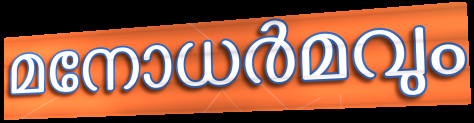
മനോധർമവും